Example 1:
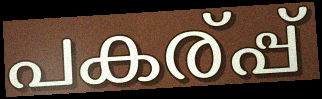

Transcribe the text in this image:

പകര്പ്പ്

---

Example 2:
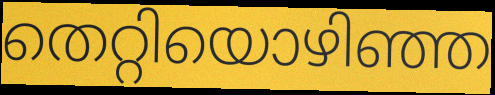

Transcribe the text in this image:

തെറ്റിയൊഴിഞ്ഞ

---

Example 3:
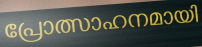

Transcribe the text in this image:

പ്രോത്സാഹനമായി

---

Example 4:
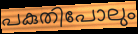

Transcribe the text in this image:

പകുതിപോലും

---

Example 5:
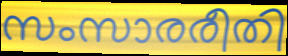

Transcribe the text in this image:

സംസാരരീതി